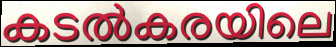
കടൽകരയിലെ